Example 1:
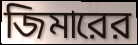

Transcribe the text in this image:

জিমারের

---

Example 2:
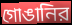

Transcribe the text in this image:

গোঙানির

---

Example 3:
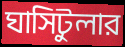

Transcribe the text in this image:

ঘাসিটুলার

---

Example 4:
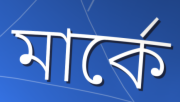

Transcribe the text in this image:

মার্কে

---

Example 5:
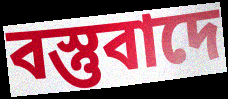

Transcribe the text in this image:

বস্তুবাদে